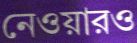
নেওয়ারও